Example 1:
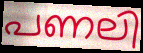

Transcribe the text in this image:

പണലി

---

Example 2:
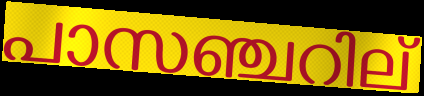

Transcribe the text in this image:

പാസഞ്ചറില്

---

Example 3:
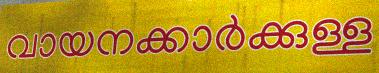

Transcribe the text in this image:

വായനക്കാർക്കുള്ള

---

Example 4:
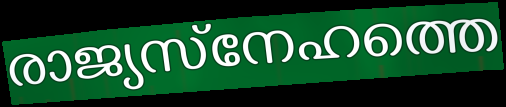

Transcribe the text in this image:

രാജ്യസ്‌നേഹത്തെ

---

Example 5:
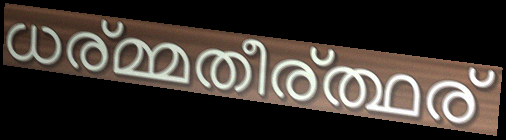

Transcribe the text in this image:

ധര്മ്മതീര്ത്ഥര്